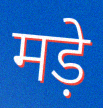
मड़े